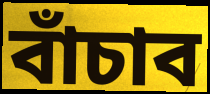
বাঁচাব